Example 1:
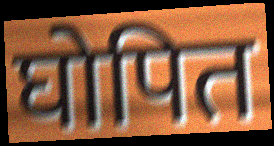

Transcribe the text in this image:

घोपित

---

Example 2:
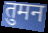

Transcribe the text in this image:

तुमन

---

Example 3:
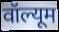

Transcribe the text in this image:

वॉल्यूम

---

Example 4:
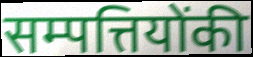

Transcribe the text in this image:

सम्पत्तियोंकी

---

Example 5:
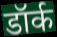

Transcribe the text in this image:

डॉर्क